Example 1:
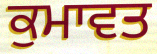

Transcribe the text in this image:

ਕੁਮਾਵਤ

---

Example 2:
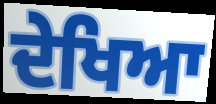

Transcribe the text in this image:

ਦੇਖਿਆ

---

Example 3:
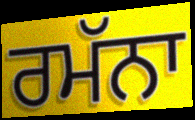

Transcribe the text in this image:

ਰਮੱਨਾ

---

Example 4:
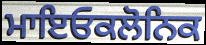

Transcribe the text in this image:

ਮਾਇਓਕਲੋਨਿਕ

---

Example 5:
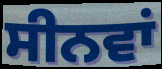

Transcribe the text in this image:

ਸੀਨਵਾਂ